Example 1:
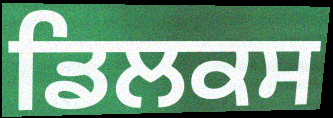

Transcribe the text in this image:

ਡਿਲਕਸ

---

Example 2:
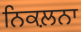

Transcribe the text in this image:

ਨਿਕਲ਼ਨਾ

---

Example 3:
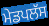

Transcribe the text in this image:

ਮੇਡਪਲੱਸ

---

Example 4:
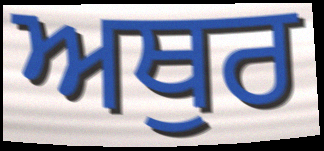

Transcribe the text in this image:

ਅਥੁਰ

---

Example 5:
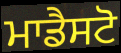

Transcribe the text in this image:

ਮਾਡੈਸਟੋ